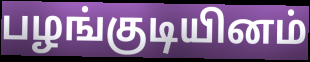
பழங்குடியினம்